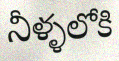
నీళ్ళలోకి